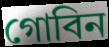
গোবিন